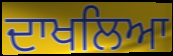
ਦਾਖਲਿਆ